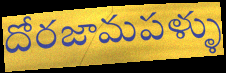
దోరజామపళ్ళు